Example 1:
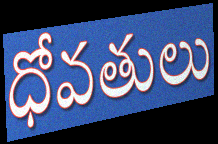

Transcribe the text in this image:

ధోవతులు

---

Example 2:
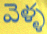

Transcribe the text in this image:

వెళ్ళ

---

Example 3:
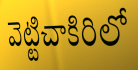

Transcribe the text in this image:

వెట్టిచాకిరిలో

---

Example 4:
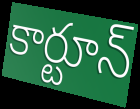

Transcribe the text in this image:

కార్టూన్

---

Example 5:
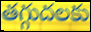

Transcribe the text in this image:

తగ్గుదలకు